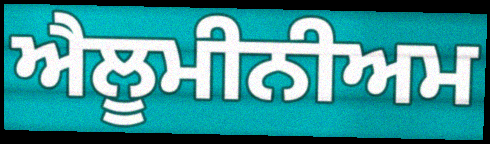
ਐਲੂਮੀਨੀਅਮ